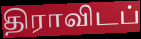
திராவிடப்